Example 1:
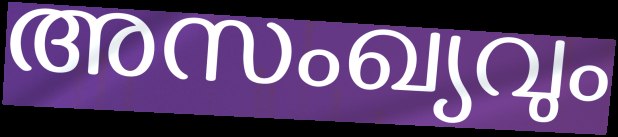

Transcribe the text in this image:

അസംഖ്യവും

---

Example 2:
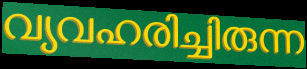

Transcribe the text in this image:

വ്യവഹരിച്ചിരുന്ന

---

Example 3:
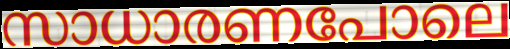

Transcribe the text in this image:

സാധാരണപോലെ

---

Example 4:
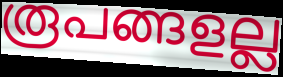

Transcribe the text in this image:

രൂപങ്ങളല്ല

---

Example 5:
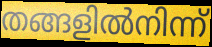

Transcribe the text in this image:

തങ്ങളിൽനിന്ന്